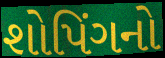
શોપિંગનો